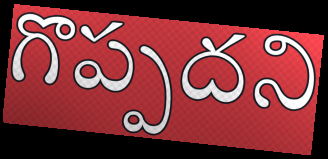
గొప్పదని